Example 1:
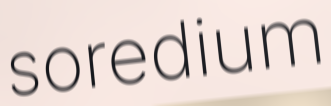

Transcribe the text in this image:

soredium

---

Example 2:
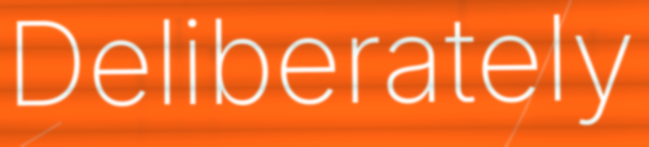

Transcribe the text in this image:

Deliberately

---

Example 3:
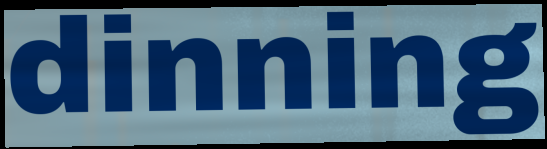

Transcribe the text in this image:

dinning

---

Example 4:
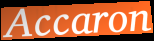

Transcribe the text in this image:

Accaron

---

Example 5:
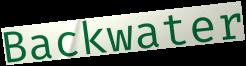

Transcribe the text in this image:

Backwater